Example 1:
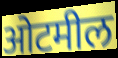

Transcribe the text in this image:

ओटमील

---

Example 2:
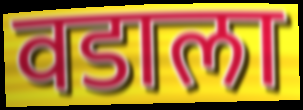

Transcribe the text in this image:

वडाला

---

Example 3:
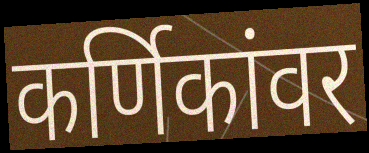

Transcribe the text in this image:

कर्णिकांवर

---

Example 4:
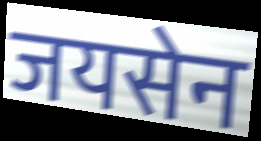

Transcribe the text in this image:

जयसेन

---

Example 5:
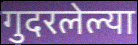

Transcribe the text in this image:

गुदरलेल्या